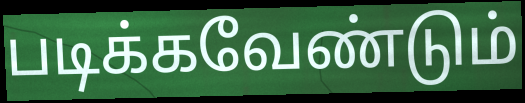
படிக்கவேண்டும்